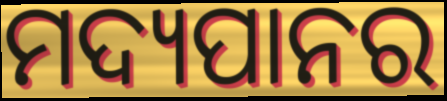
ମଦ୍ୟପାନର